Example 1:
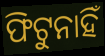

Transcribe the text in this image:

ଫିଟୁନାହିଁ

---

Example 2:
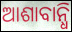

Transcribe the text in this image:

ଆଶାବାନ୍ଧି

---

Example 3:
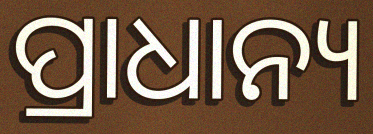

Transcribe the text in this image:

ପ୍ରାଧାନ୍ୟ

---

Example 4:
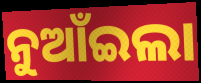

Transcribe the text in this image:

ନୁଆଁଇଲା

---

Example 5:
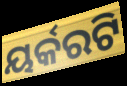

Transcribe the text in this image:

ୟର୍କରଟି